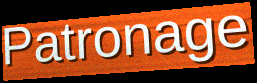
Patronage